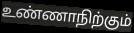
உண்ணாநிற்கும்